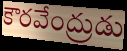
కౌరవేంద్రుడు